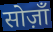
सोज़ाँ